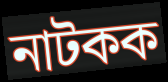
নাটকক